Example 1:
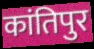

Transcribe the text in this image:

कांतिपुर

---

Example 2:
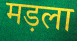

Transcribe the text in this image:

मड़ला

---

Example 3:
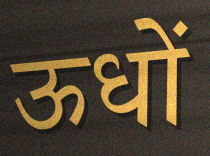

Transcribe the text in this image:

ऊधों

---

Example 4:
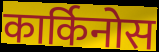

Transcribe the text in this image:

कार्किनोस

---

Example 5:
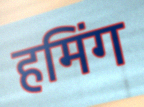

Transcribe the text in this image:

हमिंग